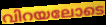
വിറയലോടെ